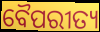
ବୈପରୀତ୍ୟ